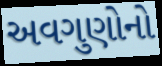
અવગુણોનો